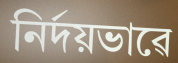
নিৰ্দয়ভাৱে